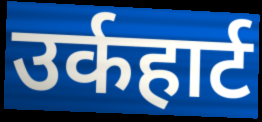
उर्कहार्ट